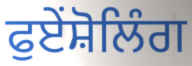
ਫੁਏਂਸ਼ੋਲਿੰਗ